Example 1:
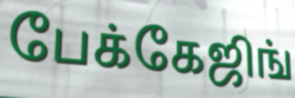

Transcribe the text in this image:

பேக்கேஜிங்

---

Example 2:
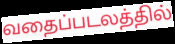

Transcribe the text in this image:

வதைப்படலத்தில்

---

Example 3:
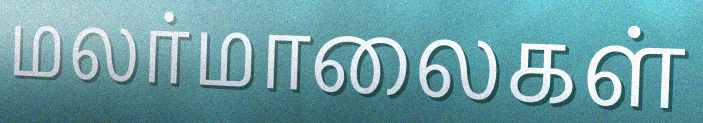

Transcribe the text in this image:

மலர்மாலைகள்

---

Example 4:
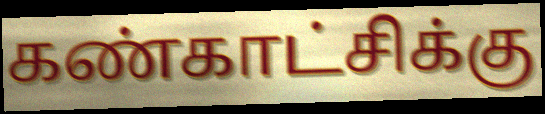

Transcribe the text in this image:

கண்காட்சிக்கு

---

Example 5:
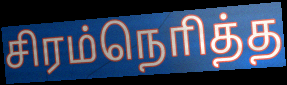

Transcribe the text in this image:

சிரம்நெரித்த